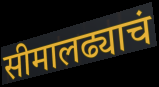
सीमालढ्याचं